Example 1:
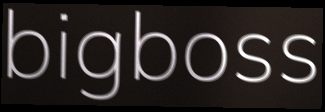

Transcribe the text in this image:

bigboss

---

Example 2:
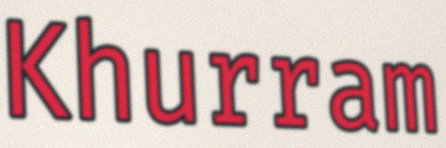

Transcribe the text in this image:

Khurram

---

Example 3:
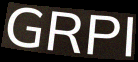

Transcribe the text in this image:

GRPI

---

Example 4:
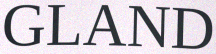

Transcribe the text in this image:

GLAND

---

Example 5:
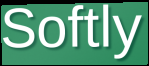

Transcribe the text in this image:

Softly